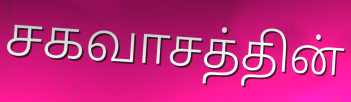
சகவாசத்தின்